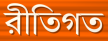
রীতিগত